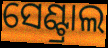
ସେଣ୍ଟ୍ରାଲ